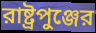
রাষ্ট্রপুঞ্জের